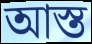
আস্ত